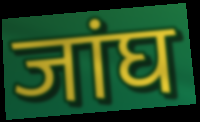
जांघ